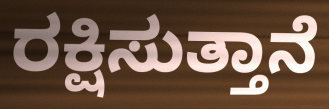
ರಕ್ಷಿಸುತ್ತಾನೆ